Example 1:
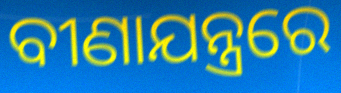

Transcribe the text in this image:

ବୀଣାଯନ୍ତ୍ରରେ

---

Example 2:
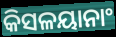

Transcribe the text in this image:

କିସଳୟାନାଂ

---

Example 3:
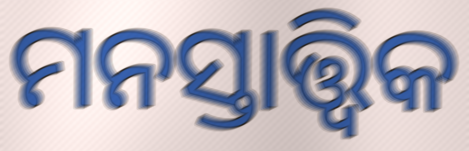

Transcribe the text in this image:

ମନସ୍ତାତ୍ତ୍ବିକ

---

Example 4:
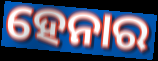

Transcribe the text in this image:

ହେନାର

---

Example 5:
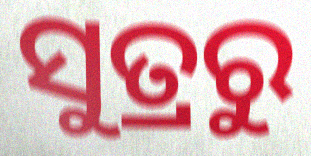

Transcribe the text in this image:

ସୁତ୍ରରୁ